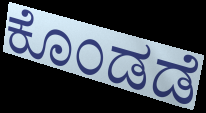
ಕೊಂಡಡೆ